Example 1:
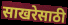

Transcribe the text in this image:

साखरेसाठी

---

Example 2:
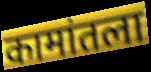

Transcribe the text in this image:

कामांतला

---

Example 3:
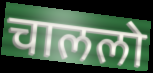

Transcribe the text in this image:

चाललो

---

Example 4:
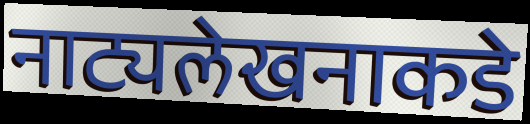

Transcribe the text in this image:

नाट्यलेखनाकडे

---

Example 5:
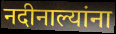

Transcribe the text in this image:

नदीनाल्यांना